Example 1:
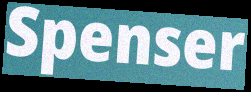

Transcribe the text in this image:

Spenser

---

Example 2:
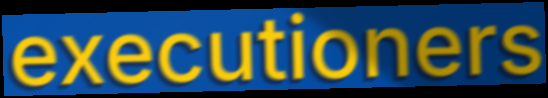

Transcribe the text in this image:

executioners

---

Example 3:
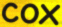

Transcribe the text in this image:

cox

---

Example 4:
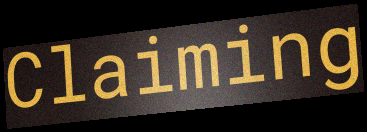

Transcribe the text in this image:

Claiming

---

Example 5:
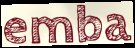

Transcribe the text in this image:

emba